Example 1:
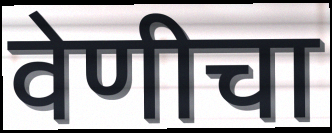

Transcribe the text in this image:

वेणीचा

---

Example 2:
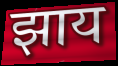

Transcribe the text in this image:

झाय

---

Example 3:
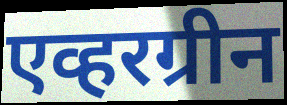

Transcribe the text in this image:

एव्हरग्रीन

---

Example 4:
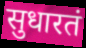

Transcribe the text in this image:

सुधारतं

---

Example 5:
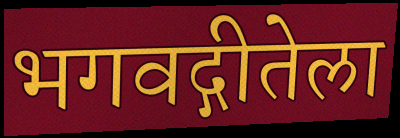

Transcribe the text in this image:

भगवद्गीतेला